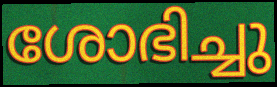
ശോഭിച്ചു